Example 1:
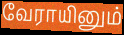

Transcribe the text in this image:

வேராயினும்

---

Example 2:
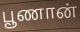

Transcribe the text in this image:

பூணான்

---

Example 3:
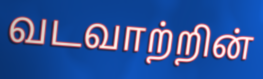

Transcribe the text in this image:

வடவாற்றின்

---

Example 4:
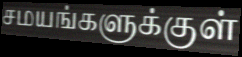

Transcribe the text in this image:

சமயங்களுக்குள்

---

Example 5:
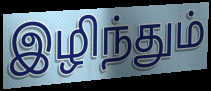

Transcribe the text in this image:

இழிந்தும்